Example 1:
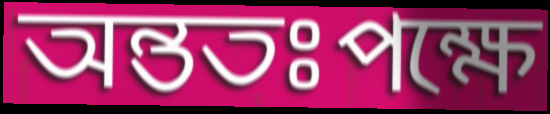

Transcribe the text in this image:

অন্ততঃপক্ষে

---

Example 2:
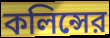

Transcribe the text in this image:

কলিন্সের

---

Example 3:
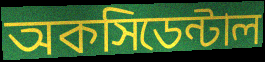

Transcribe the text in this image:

অকসিডেন্টাল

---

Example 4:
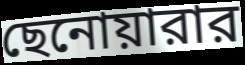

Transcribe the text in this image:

ছেনোয়ারার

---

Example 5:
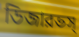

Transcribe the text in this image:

ডিজারভস্